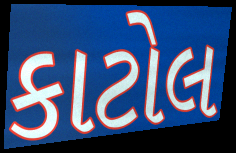
કાટોલ